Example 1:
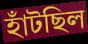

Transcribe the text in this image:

হাঁটছিল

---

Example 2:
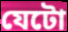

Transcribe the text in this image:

যেটো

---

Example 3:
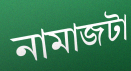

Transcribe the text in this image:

নামাজটা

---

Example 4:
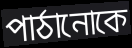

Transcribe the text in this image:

পাঠানোকে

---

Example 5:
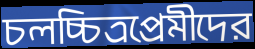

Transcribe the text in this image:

চলচ্চিত্রপ্রেমীদের